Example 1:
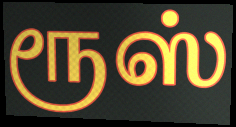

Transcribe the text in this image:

ரூஸ்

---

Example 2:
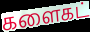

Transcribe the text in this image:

களைகட்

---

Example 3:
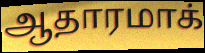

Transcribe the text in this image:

ஆதாரமாக்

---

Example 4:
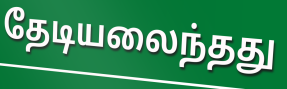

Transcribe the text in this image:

தேடியலைந்தது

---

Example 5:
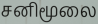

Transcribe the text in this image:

சனிமூலை